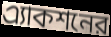
এ্যাকশনের